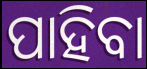
ପାହିବା